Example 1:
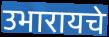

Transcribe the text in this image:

उभारायचे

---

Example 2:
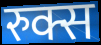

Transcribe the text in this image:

रुक्स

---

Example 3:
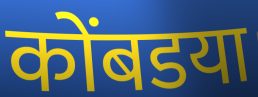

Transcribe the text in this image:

कोंबडया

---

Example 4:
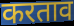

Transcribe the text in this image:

करताव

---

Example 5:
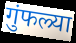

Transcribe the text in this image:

गुंफल्या